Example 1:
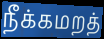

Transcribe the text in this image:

நீக்கமறத்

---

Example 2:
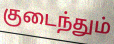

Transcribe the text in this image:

குடைந்தும்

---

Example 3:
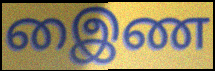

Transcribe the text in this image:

இைண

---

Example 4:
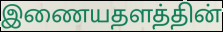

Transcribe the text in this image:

இணையதளத்தின்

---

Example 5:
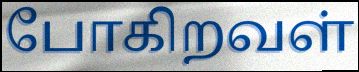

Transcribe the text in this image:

போகிறவள்